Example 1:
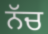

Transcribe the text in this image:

ਨੱਚ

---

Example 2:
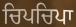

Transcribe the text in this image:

ਚਿਪਚਿਪਾ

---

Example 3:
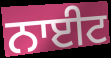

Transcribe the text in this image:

ਨਾਈਟ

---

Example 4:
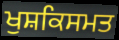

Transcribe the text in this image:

ਖੁਸ਼ਕਿਸਮਤ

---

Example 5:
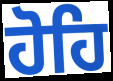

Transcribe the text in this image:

ਹੋਹਿ